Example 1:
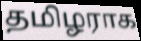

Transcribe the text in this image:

தமிழராக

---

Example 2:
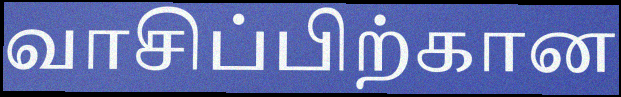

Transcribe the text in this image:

வாசிப்பிற்கான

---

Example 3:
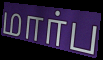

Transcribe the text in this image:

மார்ப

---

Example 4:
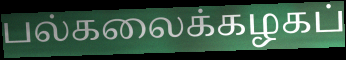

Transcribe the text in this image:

பல்கலைக்கழகப்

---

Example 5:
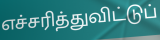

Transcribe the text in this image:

எச்சரித்துவிட்டுப்